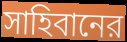
সাহিবানের